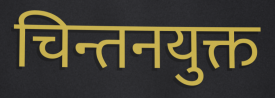
चिन्तनयुक्त